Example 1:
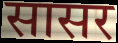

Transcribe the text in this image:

सासर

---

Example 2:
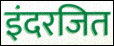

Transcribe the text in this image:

इंदरजित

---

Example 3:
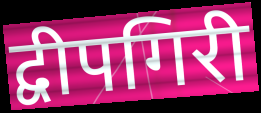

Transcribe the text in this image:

द्वीपगिरी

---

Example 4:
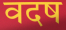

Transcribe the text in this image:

वदष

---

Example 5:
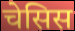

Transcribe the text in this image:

चेसिस